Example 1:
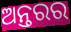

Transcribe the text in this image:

ଅନ୍ତରର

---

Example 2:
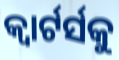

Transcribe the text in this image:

କ୍ୱାର୍ଟର୍ସକୁ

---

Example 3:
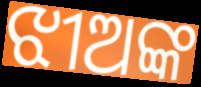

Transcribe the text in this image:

ଝୀଅଙ୍କ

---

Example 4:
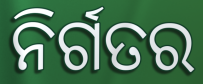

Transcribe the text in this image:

ନିର୍ଗତର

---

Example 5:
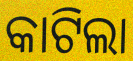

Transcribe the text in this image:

କାଟିଲା